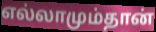
எல்லாமும்தான்